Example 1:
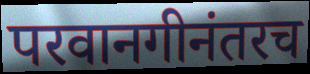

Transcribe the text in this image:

परवानगीनंतरच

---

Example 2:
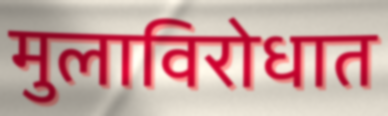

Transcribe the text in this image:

मुलाविरोधात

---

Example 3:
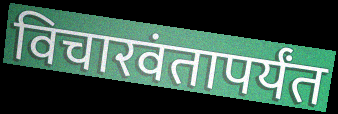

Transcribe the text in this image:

विचारवंतापर्यंत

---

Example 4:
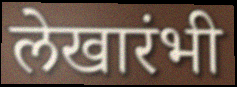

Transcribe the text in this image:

लेखारंभी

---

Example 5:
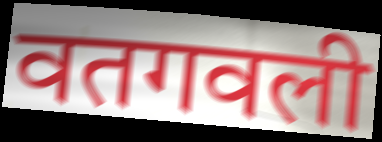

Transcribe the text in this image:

वतगवली